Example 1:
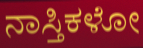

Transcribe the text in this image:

ನಾಸ್ತಿಕಳೋ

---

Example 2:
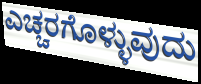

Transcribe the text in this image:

ಎಚ್ಚರಗೊಳ್ಳುವುದು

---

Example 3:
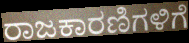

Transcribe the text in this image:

ರಾಜಕಾರಣಿಗಳಿಗೆ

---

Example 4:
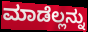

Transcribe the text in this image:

ಮಾಡೆಲ್ಲನ್ನು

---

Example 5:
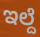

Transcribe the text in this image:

ಇಲ್ದೆ